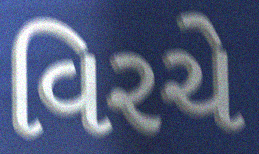
વિરચે